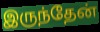
இருந்தேன்